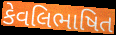
કેવલિભાષિત